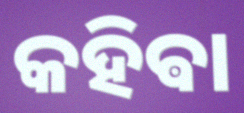
କହିଵା